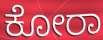
ಕೋರಾ